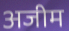
अजीम